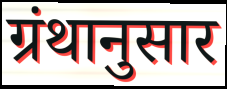
ग्रंथानुसार